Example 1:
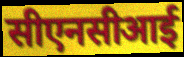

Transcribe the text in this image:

सीएनसीआई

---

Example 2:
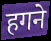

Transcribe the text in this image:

हगने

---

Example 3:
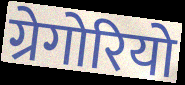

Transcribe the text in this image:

ग्रेगोरियो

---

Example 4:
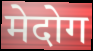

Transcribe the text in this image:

मेदोग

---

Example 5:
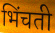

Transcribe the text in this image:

भिंचती